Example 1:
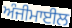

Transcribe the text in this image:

ਅੰਜੀਮਾਈਲ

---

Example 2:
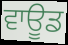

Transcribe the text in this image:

ਵਾਊਡ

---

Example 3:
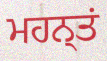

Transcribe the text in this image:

ਮਹਨ੍ਤਂ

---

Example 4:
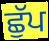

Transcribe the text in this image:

ਛੁੱਪ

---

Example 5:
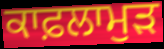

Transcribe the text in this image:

ਕਾਫ਼ਲਾਮੁੜ